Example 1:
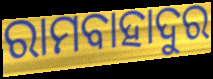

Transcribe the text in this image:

ରାମବାହାଦୁର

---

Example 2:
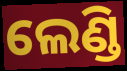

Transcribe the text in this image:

ଲେଣ୍ଡି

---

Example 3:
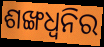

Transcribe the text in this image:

ଶଙ୍ଖଧ୍ବନିର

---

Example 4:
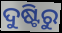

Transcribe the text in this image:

ଦୁଷ୍ଟିରୁ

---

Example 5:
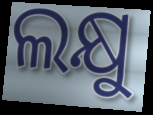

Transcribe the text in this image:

ଲକ୍ଷୁ